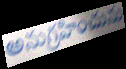
అనుగ్రహించును